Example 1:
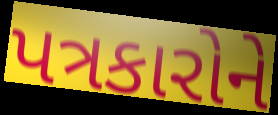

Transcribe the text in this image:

પત્રકારોને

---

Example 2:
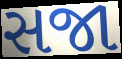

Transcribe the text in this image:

સજા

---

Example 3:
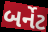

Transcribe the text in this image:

બર્નેટ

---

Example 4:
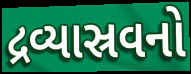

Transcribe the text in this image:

દ્રવ્યાસ્રવનો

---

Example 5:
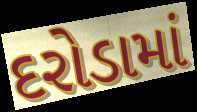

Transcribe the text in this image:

દરોડામાં